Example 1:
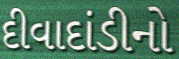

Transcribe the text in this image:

દીવાદાંડીનો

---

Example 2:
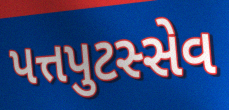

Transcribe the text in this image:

પત્તપુટસ્સેવ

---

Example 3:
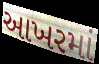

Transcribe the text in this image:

આખરમાં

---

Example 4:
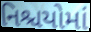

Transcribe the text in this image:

નિશ્ચયોમાં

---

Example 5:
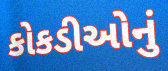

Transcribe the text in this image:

કોકડીઓનું